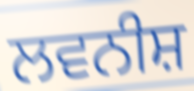
ਲਵਨੀਸ਼